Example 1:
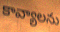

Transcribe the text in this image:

కావ్యాలను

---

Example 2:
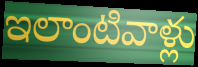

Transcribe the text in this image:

ఇలాంటివాళ్లు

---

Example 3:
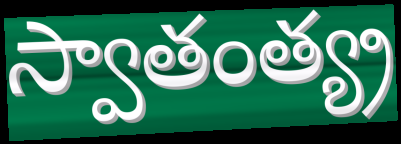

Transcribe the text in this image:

స్వాతంత్య్ర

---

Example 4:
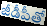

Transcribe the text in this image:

జీడీపీతో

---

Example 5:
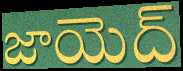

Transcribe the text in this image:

జాయెద్